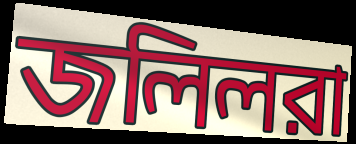
জলিলরা